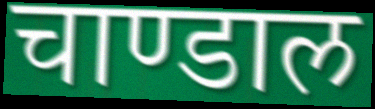
चाण्डाल